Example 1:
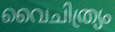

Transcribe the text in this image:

വൈചിത്ര്യം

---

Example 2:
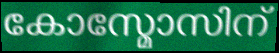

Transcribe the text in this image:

കോസ്മോസിന്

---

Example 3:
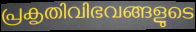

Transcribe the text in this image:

പ്രകൃതിവിഭവങ്ങളുടെ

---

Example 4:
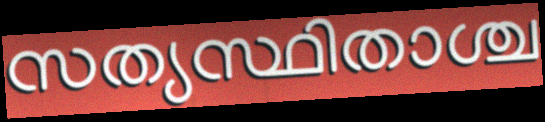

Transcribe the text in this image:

സത്യസ്ഥിതാശ്ച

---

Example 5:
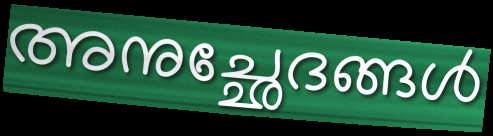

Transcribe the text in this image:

അനുച്ഛേദങ്ങൾ